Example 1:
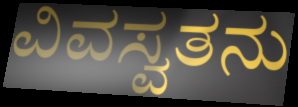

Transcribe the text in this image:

ವಿವಸ್ವತನು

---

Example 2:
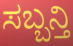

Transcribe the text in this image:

ಸಬ್ಬನ್ತಿ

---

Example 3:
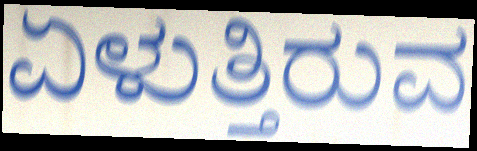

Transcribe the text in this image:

ಏಳುತ್ತಿರುವ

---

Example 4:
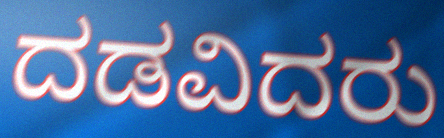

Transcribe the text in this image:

ದಡವಿದರು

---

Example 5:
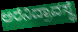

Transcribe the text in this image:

ಅರೆನಿದ್ರಾವಸ್ಥೆ